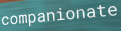
companionate